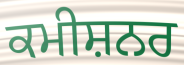
ਕਮੀਸ਼ਨਰ